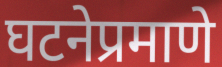
घटनेप्रमाणे